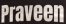
Praveen